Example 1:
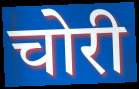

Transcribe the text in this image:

चोरी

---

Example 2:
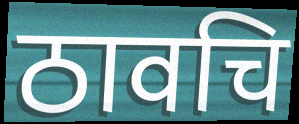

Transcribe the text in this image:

ठावचि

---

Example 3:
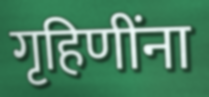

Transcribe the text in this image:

गृहिणींना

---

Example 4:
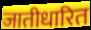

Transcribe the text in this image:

जातीधारित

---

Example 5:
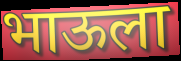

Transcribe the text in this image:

भाऊला